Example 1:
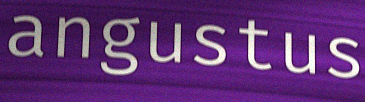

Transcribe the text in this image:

angustus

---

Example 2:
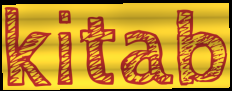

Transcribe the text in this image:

kitab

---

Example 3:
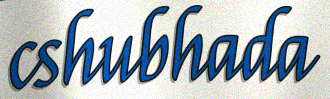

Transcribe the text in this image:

cshubhada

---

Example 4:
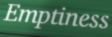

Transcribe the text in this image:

Emptiness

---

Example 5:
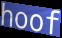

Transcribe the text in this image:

hoof